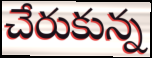
చేరుకున్న